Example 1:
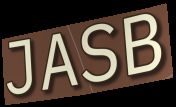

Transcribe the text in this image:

JASB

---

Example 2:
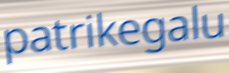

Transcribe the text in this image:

patrikegalu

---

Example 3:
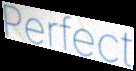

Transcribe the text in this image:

Perfect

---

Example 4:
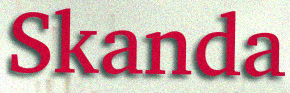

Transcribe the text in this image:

Skanda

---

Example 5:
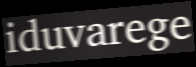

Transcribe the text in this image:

iduvarege